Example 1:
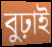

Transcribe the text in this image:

বুঢ়াই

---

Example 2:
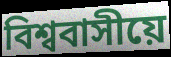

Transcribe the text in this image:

বিশ্ববাসীয়ে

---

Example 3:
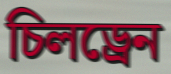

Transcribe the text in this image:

চিলড্ৰেন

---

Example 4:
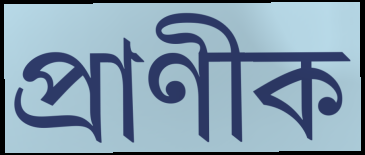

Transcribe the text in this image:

প্ৰাণীক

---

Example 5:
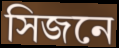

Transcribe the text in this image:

সিজনে